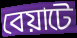
বেয়াটে